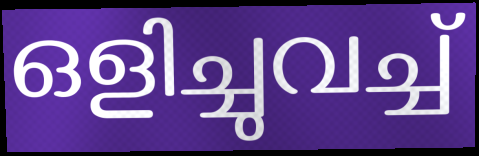
ഒളിച്ചുവച്ച്